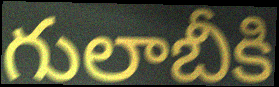
గులాబీకి